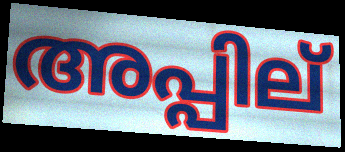
അപ്പില്